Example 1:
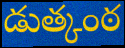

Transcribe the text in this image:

డుత్కంఠ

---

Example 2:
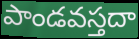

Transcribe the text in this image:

పాండవస్తదా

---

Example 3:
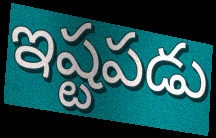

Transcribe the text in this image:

ఇష్టపడు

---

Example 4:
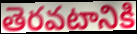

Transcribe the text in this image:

తెరవటానికి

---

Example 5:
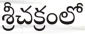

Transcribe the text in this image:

శ్రీచక్రంలో